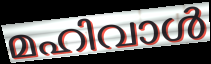
മഹിവാൾ